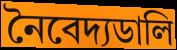
নৈবেদ্যডালি